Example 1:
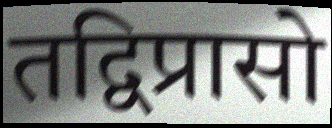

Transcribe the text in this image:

तद्विप्रासो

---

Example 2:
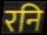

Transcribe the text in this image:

रनि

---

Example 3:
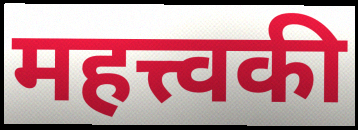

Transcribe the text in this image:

महत्त्वकी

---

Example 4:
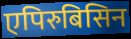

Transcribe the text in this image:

एपिरुबिसिन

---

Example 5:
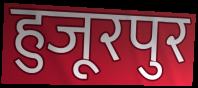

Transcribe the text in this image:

हुजूरपुर